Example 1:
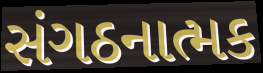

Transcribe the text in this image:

સંગઠનાત્મક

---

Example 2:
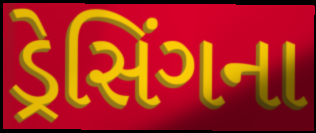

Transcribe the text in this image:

ડ્રેસિંગના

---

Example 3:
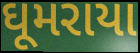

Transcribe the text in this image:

ઘૂમરાયા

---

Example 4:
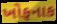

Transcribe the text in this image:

ખોફનાક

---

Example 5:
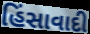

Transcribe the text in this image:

હિંસાવાદી